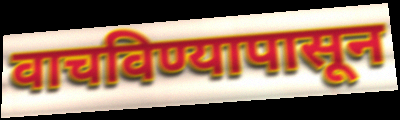
वाचविण्यापासून